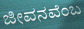
ಜೀವನವೆಂಬ